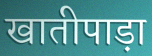
खातीपाड़ा